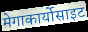
मेगाकार्योसाइट